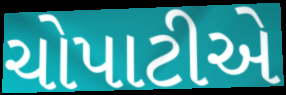
ચોપાટીએ